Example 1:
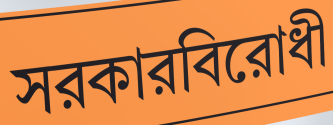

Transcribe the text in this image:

সরকারবিরোধী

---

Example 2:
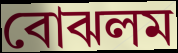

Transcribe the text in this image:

বোঝলম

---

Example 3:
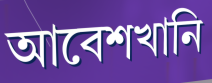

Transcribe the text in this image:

আবেশখানি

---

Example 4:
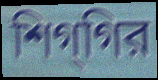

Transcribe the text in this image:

শিগ্‌গির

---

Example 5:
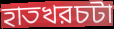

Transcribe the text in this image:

হাতখরচটা